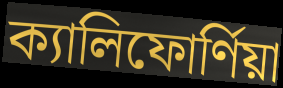
ক্যালিফোর্ণিয়া